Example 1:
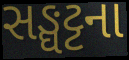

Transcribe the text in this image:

સઙ્ઘટ્ટના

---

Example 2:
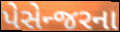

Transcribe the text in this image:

પેસેન્જરના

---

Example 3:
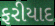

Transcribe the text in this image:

ફરીયાદ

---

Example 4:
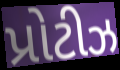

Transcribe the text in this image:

પ્રોટીઝ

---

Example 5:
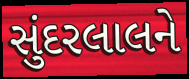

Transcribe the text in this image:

સુંદરલાલને